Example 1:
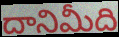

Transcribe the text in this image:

దానిమీది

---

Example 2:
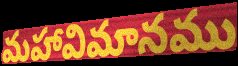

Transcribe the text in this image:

మహావిమానము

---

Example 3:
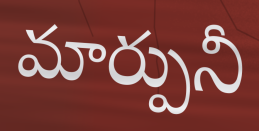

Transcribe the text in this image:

మార్పునీ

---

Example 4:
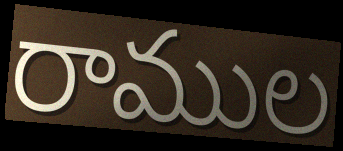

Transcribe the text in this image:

రాముల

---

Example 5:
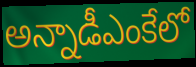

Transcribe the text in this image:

అన్నాడీఎంకేలో